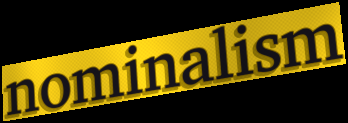
nominalism